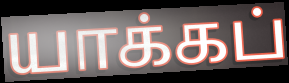
யாக்கப்